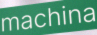
machina